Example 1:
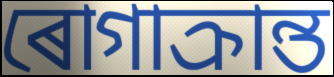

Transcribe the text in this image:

ৰোগাক্ৰান্ত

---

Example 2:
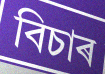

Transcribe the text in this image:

বিচাৰ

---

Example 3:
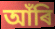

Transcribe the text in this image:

আঁৰি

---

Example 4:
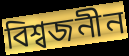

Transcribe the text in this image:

বিশ্বজনীন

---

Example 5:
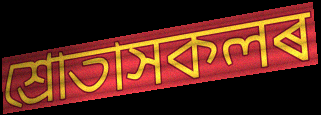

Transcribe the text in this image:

শ্ৰোতাসকলৰ